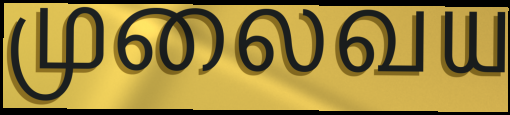
முலைவய